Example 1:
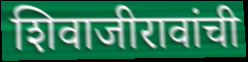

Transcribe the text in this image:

शिवाजीरावांची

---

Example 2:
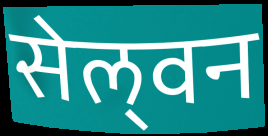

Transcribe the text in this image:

सेल्वन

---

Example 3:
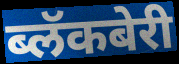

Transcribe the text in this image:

ब्लॅकबेरी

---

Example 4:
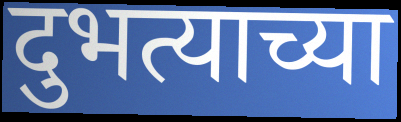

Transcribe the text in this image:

दुभत्याच्या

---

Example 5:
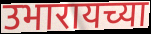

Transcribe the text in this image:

उभारायच्या